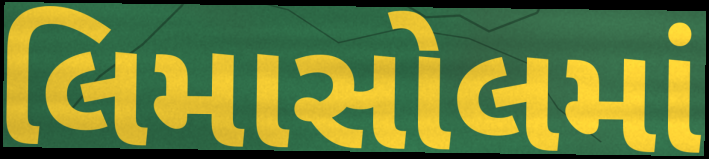
લિમાસોલમાં